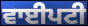
ਵਾਈਪਟੀ